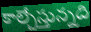
కాల్చేస్తున్నది